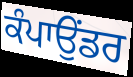
ਕੰਪਾਉਂਡਰ